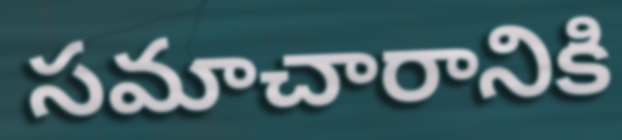
సమాచారానికి